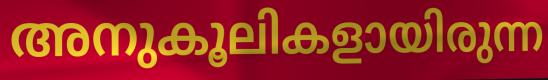
അനുകൂലികളായിരുന്ന